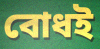
বোধই